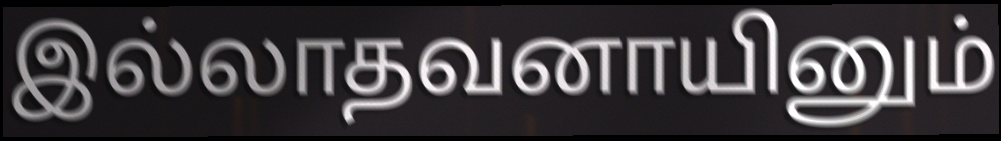
இல்லாதவனாயினும்